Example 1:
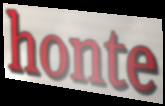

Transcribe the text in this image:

honte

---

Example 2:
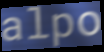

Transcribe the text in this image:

alpo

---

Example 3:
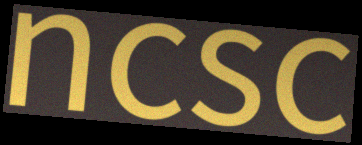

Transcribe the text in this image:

ncsc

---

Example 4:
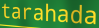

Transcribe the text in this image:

tarahada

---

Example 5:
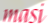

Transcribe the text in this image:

masi